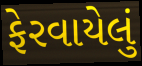
ફેરવાયેલું